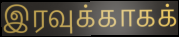
இரவுக்காகக்